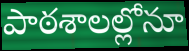
పాఠశాలల్లోనూ